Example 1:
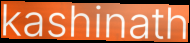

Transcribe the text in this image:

kashinath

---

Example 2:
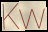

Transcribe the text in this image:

Kw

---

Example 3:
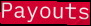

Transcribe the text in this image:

Payouts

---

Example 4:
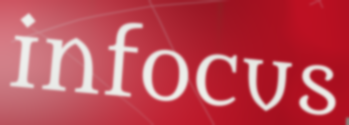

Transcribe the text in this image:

infocus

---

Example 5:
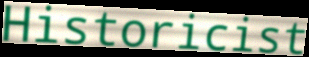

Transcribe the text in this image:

Historicist